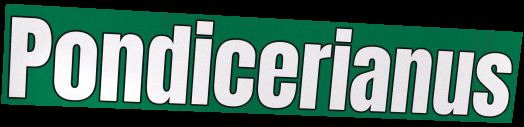
Pondicerianus